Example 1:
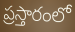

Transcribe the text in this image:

ప్రస్తారంలో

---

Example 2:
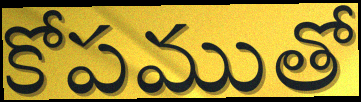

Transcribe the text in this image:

కోపముతో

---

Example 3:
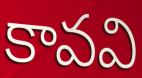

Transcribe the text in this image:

కావవి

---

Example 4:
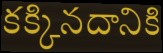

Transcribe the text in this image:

కక్కినదానికి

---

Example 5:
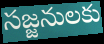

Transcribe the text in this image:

సజ్జనులకు